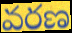
వరణ